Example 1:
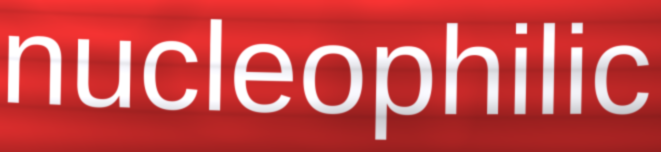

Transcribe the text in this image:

nucleophilic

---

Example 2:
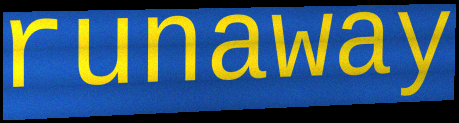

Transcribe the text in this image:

runaway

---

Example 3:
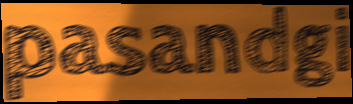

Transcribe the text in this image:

pasandgi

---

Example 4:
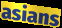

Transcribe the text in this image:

asians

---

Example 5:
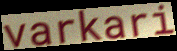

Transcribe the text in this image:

varkari